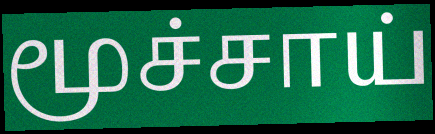
மூச்சாய்